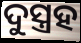
ଦୁସ୍ତ୍ରହ